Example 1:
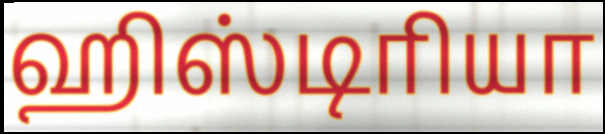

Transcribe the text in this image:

ஹிஸ்டிரியா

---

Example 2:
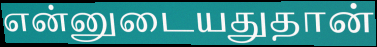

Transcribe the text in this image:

என்னுடையதுதான்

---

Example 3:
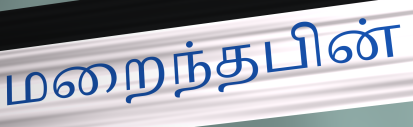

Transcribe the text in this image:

மறைந்தபின்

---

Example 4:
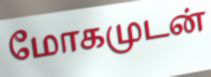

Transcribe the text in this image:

மோகமுடன்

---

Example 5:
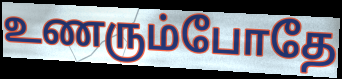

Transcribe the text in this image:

உணரும்போதே